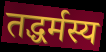
तद्धर्मस्य